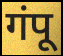
गंपू